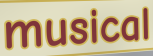
musical